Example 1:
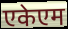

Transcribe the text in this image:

एकेएम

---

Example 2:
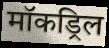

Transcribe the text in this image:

मॉकड्रिल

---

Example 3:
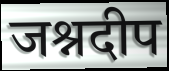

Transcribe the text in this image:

जश्नदीप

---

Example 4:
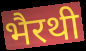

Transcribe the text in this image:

भैरथी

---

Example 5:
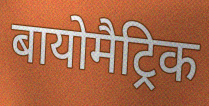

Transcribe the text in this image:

बायोमैट्रिक